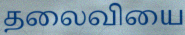
தலைவியை